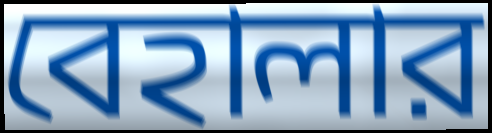
বেহালার